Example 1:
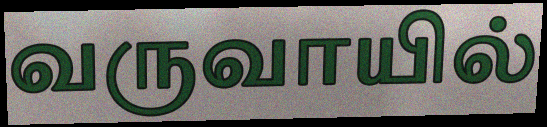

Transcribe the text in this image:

வருவாயில்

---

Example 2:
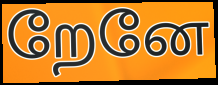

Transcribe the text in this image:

றேனே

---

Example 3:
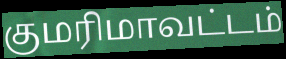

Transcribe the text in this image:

குமரிமாவட்டம்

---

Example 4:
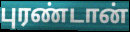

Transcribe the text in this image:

புரண்டான்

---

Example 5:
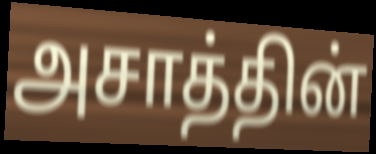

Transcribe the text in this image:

அசாத்தின்